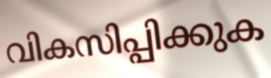
വികസിപ്പിക്കുക